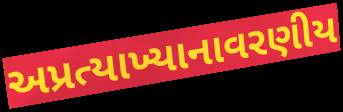
અપ્રત્યાખ્યાનાવરણીય